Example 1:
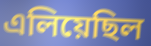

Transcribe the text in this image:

এলিয়েছিল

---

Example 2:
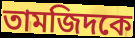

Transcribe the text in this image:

তামজিদকে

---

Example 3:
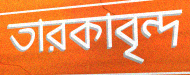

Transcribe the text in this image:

তারকাবৃন্দ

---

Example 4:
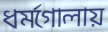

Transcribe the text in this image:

ধর্মগোলায়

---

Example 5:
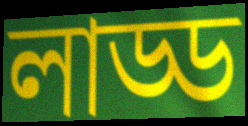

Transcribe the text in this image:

লাড্ড